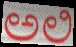
ಅಲಿ